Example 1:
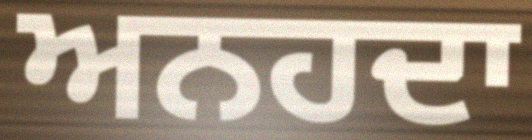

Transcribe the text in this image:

ਅਨਹਦਾ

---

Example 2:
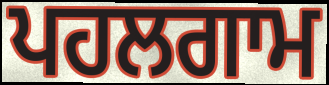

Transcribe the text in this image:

ਪਹਲਗਾਮ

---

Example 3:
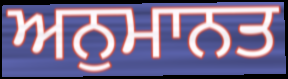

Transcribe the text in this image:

ਅਨੁਮਾਨਤ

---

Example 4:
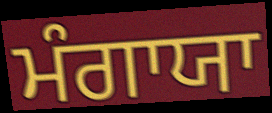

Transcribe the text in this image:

ਮੰਗਾਯਾ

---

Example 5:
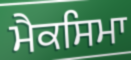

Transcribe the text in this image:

ਮੈਕਸਿਮਾ